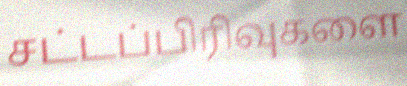
சட்டப்பிரிவுகளை